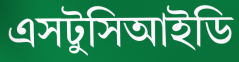
এসটুসিআইডি